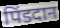
पिंडदान